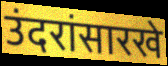
उंदरांसारखे